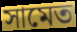
সামেত